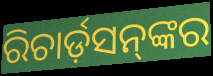
ରିଚାର୍ଡ଼ସନ୍‌ଙ୍କର